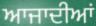
ਆਜਾਦੀਆਂ